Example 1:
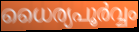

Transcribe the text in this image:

ധൈര്യപൂർവ്വം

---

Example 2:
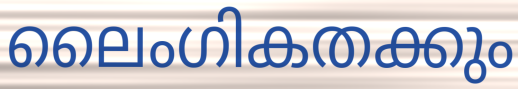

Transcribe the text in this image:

ലൈംഗികതക്കും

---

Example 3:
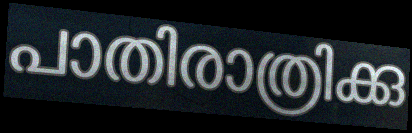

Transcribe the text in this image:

പാതിരാത്രിക്കു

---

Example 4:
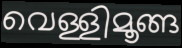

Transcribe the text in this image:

വെള്ളിമൂങ്ങ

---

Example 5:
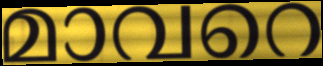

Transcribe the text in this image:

മാവറെ